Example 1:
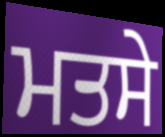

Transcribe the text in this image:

ਮਤਸੇ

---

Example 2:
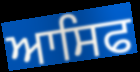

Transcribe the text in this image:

ਆਸਿਫ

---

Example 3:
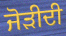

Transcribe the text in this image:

ਜੋੜੀਦੀ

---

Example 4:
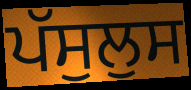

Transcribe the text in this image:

ਪੱਸੁਲੁਸ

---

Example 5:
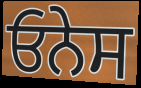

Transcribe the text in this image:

ਓਨੇਸ